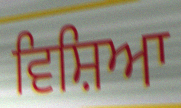
ਵਿਸ਼ਿਆ